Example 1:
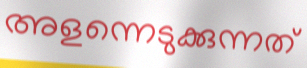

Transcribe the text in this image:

അളന്നെടുക്കുന്നത്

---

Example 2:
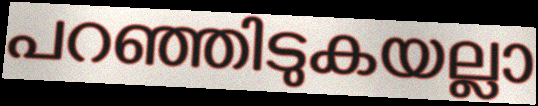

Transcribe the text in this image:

പറഞ്ഞിടുകയല്ലാ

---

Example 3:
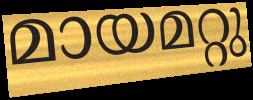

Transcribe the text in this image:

മായമറ്റു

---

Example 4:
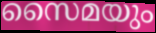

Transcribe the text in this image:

സൈമയും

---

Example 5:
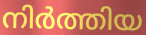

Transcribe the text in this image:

നിർത്തിയ